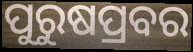
ପୁରୁଷପ୍ରବର